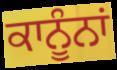
ਕਾਨੂੰਨਾਂ